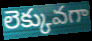
లెక్కువగా